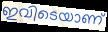
ഇവിടെയാണ്